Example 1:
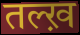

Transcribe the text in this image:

तल्ख़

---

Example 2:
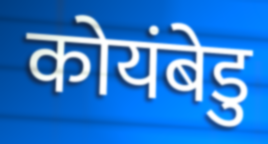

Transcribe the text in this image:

कोयंबेडु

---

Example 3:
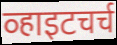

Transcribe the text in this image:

व्हाइटचर्च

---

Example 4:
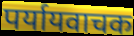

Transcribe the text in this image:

पर्यायवाचक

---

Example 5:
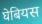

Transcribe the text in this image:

घेबियस